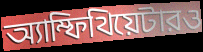
অ্যাম্ফিথিয়েটারও